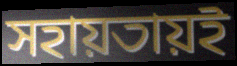
সহায়তায়ই